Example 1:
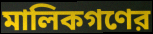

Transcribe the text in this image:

মালিকগণের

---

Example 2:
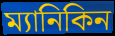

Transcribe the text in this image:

ম্যানিকিন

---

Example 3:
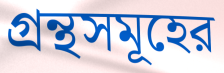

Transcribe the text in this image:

গ্রন্থসমূহের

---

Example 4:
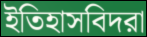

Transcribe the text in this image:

ইতিহাসবিদরা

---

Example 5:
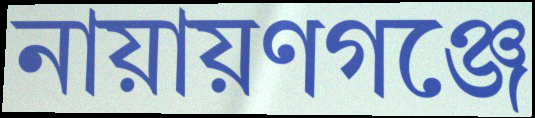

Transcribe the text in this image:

নায়ায়ণগঞ্জে